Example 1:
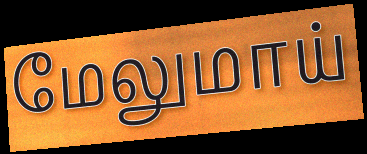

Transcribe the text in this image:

மேலுமாய்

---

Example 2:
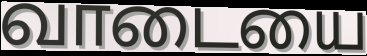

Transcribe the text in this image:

வாடையை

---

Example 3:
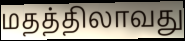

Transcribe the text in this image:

மதத்திலாவது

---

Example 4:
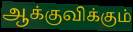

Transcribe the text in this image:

ஆக்குவிக்கும்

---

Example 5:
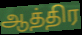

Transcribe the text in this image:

ஆத்திர